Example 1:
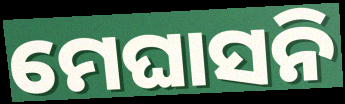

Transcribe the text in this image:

ମେଘାସନି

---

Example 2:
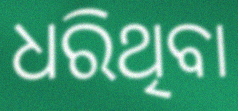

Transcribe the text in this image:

ଧରିଥିବା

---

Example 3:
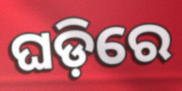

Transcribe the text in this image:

ଘଡ଼ିରେ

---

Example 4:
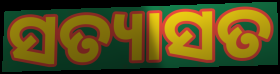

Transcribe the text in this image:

ସତ୍ୟାସତ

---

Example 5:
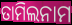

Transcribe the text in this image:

ତାମିଲନାମ